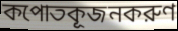
কপোতকূজনকরুণ